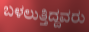
ಬಳಲುತ್ತಿದ್ದವರು